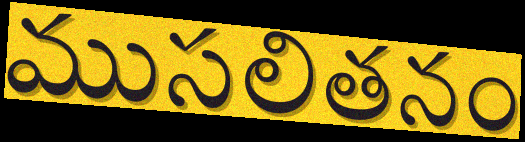
ముసలితనం